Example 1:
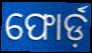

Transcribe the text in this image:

ଫୋର୍ଡ଼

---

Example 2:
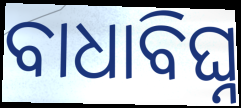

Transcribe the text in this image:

ବାଧାବିଘ୍ନ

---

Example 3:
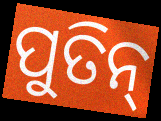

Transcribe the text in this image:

ପୁତିନ୍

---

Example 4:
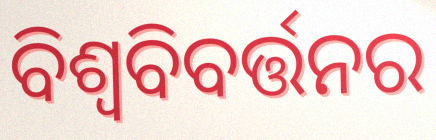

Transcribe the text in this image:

ବିଶ୍ଵବିବର୍ତ୍ତନର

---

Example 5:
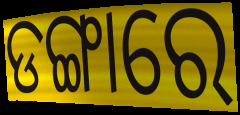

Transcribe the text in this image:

ଡଙ୍ଗାରେ